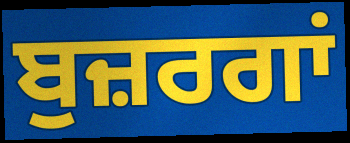
ਬੁਜ਼ਰਗਾਂ